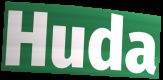
Huda